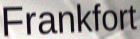
Frankfort